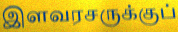
இளவரசருக்குப்